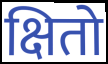
क्षितो